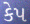
કેપ